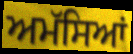
ਅਮੱਸਿਆਂ